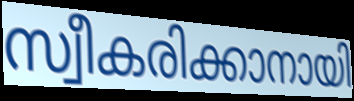
സ്വീകരിക്കാനായി